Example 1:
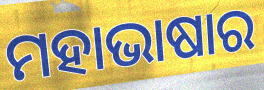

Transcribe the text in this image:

ମହାଭାଷାର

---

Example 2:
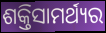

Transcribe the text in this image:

ଶକ୍ତିସାମର୍ଥ୍ୟର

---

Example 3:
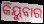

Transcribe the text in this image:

କିୟୁବାର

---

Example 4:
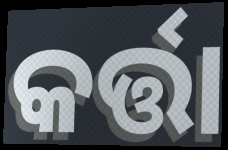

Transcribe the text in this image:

କର୍ତ୍ତା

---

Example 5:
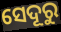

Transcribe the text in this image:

ସେଦୂରୁ